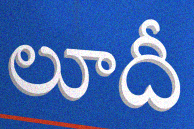
లూదీ